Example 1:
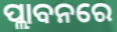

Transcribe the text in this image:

ପ୍ଲାବନରେ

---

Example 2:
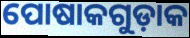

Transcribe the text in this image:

ପୋଷାକଗୁଡ଼ାକ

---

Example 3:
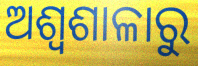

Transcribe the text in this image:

ଅଶ୍ୱଶାଳାରୁ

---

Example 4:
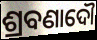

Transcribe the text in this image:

ଶ୍ରବଣାଦୌ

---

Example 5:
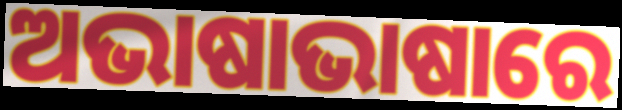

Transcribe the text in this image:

ଅଭାଷାଭାଷାରେ